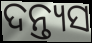
ଦନ୍ତ୍ୟସ